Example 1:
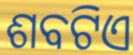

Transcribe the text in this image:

ଶବଟିଏ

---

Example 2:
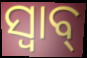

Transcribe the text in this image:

ସ୍ବାବ୍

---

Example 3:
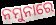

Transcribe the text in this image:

ନମୁନାରେ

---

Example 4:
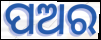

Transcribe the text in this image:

ପଅର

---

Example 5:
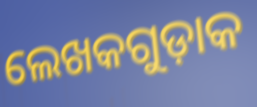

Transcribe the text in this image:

ଲେଖକଗୁଡ଼ାକ